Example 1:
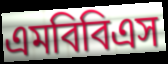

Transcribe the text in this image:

এমবিবিএস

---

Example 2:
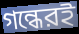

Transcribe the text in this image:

গন্ধেরই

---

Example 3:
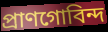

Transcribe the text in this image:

প্রাণগোবিন্দ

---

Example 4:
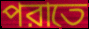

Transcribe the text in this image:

পরাতে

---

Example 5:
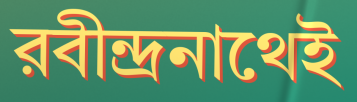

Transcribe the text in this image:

রবীন্দ্রনাথেই